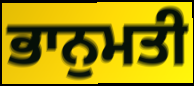
ਭਾਨੁਮਤੀ